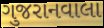
ગુજરાનવાલા